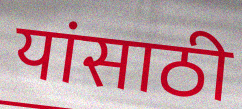
यांसाठी